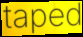
taped